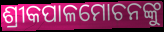
ଶ୍ରୀକପାଳମୋଚନଙ୍କୁ